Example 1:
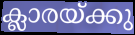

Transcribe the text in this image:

ക്ലാരയ്ക്കു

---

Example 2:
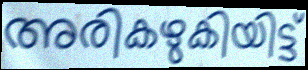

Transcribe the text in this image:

അരികഴുകിയിട്ട്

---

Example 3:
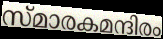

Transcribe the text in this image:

സ്മാരകമന്ദിരം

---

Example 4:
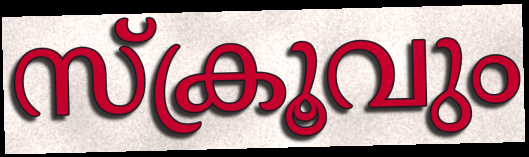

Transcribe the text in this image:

സ്ക്രൂവും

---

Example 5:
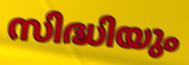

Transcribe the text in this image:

സിദ്ധിയും